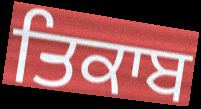
ਤਿਕਾਬ